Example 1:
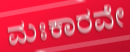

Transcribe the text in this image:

ಮಃಕಾರವೇ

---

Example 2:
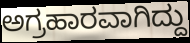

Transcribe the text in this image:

ಅಗ್ರಹಾರವಾಗಿದ್ದು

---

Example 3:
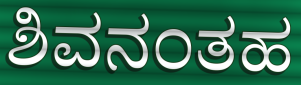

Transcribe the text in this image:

ಶಿವನಂತಹ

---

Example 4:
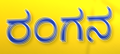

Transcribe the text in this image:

ರಂಗನ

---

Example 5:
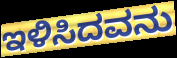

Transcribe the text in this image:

ಇಳಿಸಿದವನು